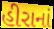
હીરાનાં